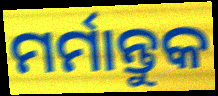
ମର୍ମାନ୍ତୁକ